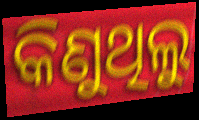
କିଣୁଥିଲୁ